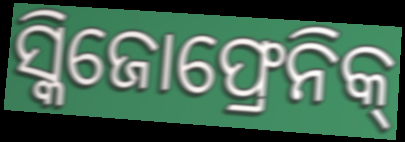
ସ୍କିଜୋଫ୍ରେନିକ୍